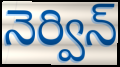
నెర్విన్